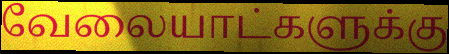
வேலையாட்களுக்கு